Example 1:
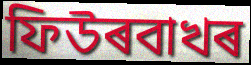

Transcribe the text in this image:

ফিউৰবাখৰ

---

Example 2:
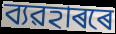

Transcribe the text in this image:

ব্যৱহাৰৰে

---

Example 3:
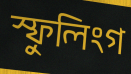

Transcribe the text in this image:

স্ফুলিংগ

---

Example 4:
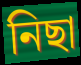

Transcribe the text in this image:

নিছা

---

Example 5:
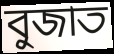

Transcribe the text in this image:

বুজাত